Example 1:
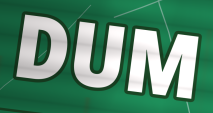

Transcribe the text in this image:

DUM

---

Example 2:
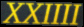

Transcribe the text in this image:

XXIIII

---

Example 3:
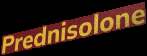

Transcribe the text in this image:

Prednisolone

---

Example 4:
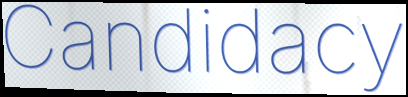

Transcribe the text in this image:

Candidacy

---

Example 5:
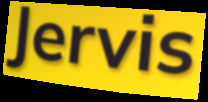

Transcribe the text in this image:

Jervis